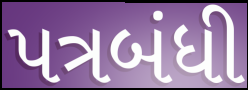
પત્રબંધી